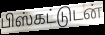
பிஸ்கட்டுடன்